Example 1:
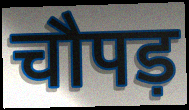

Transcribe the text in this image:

चौपड़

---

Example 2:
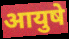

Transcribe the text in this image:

आयुषे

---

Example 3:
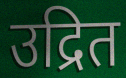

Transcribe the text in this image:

उद्रित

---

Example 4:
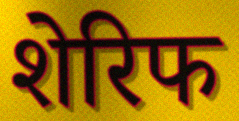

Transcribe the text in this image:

शेरिफ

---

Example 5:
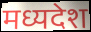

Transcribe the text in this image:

मध्यदेश